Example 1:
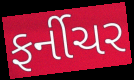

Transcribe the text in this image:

ફર્નીચર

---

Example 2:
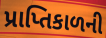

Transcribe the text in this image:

પ્રાપ્તિકાળની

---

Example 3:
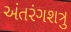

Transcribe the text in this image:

અંતરંગશત્રુ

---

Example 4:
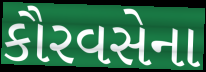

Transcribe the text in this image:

કૌરવસેના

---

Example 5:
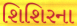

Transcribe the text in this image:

શિશિરના